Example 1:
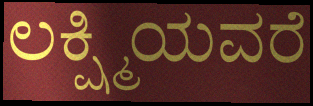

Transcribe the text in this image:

ಲಕ್ಷ್ಮಿಯವರೆ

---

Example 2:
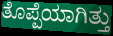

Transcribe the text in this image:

ತೊಪ್ಪೆಯಾಗಿತ್ತು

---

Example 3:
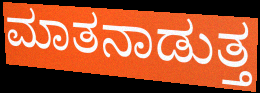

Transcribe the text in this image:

ಮಾತನಾಡುತ್ತ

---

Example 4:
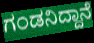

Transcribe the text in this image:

ಗಂಡನಿದ್ದಾನೆ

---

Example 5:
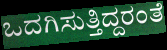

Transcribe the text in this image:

ಒದಗಿಸುತ್ತಿದ್ದರಂತೆ